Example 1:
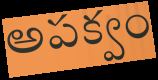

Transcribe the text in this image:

అపక్వం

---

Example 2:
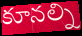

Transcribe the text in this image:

కూనల్ని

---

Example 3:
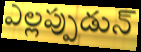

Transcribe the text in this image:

ఎల్లప్పుడున్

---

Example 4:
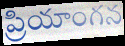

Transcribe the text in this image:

ప్రియాంగన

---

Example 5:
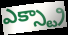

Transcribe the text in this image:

ఎక్స్ట్రా